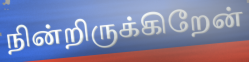
நின்றிருக்கிறேன்